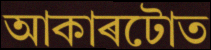
আকাৰটোত